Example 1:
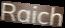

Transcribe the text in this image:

Raich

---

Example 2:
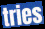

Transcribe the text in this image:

tries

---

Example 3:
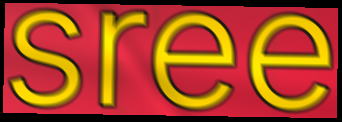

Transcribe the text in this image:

sree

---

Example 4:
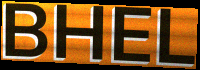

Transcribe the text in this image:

BHEL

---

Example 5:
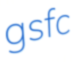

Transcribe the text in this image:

gsfc